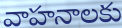
వాహనాలకు